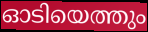
ഓടിയെത്തും